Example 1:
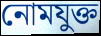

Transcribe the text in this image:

নোমযুক্ত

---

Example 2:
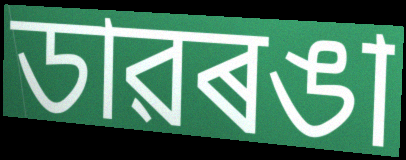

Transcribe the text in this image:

ডাৱৰঙা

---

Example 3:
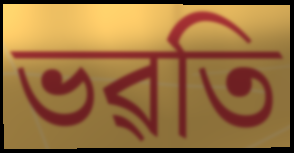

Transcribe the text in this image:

ভৱতি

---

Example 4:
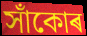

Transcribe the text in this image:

সাঁকোৰ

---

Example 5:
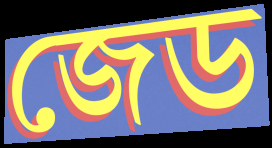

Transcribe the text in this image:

জেড